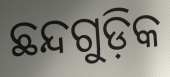
ଛନ୍ଦଗୁଡ଼ିକ